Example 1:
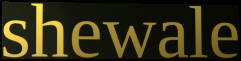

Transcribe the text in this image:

shewale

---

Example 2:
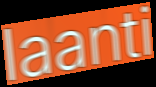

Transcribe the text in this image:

laanti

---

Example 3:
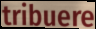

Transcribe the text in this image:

tribuere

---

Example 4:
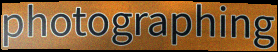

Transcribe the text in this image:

photographing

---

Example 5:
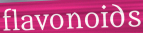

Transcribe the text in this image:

flavonoids